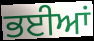
ਭਈਆਂ